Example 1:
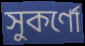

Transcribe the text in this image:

সুকর্ণো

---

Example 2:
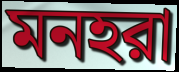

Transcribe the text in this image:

মনহরা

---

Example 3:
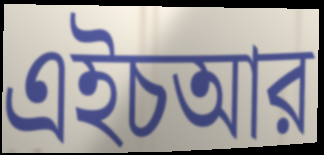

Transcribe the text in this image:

এইচআর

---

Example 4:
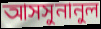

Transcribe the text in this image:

আসসুনানুল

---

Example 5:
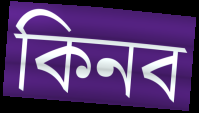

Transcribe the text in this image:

কিনব